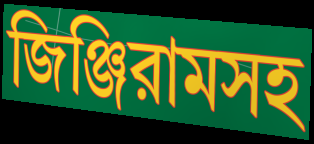
জিঞ্জিরামসহ